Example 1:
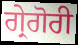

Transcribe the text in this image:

ਗ੍ਰੇਗੋਰੀ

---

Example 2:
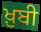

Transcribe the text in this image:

ਖ਼ੁਬੀ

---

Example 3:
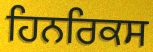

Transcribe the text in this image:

ਹਿਨਰਿਕਸ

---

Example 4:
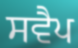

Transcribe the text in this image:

ਸਵੈਪ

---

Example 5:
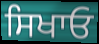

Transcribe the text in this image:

ਸਿਖਾਓ